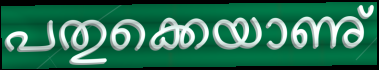
പതുക്കെയാണു്